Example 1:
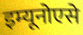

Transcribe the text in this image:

इम्यूनोएसे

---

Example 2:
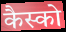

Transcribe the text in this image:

कैस्को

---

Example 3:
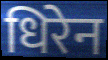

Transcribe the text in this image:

धिरेन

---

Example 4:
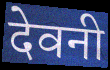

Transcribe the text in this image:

देवनी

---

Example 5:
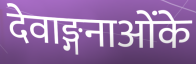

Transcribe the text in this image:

देवाङ्गनाओंके